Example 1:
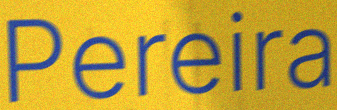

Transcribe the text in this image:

Pereira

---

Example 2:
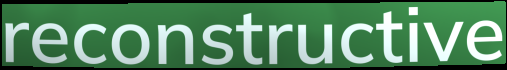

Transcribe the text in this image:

reconstructive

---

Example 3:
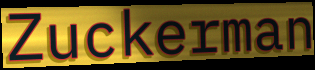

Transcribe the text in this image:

Zuckerman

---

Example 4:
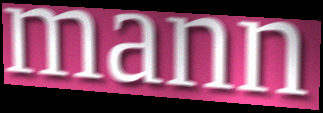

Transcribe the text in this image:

mann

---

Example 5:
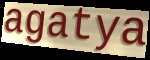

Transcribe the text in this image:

agatya